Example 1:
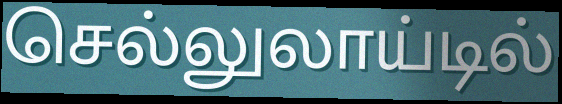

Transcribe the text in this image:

செல்லுலாய்டில்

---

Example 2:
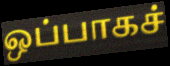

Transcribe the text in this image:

ஒப்பாகச்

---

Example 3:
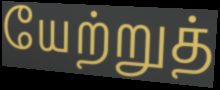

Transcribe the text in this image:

யேற்றுத்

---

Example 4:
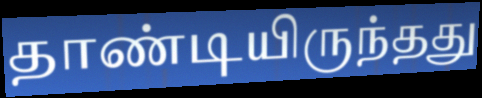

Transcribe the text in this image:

தாண்டியிருந்தது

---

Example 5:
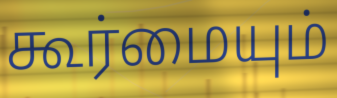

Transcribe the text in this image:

கூர்மையும்